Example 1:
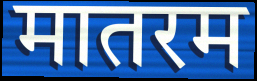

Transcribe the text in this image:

मातरम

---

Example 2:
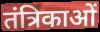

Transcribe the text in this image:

तंत्रिकाओं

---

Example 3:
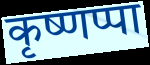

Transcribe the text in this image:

कृष्‍णप्‍पा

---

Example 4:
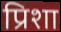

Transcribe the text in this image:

प्रिशा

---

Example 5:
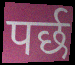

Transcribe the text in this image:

पर्छ